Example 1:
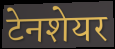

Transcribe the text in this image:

टेनशेयर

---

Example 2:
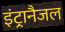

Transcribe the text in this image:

इंट्रानैजल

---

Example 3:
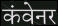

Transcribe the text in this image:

कंवेनर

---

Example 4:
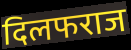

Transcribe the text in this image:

दिलफराज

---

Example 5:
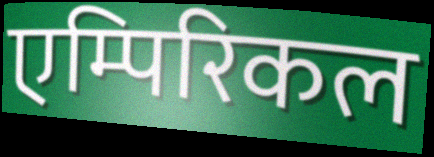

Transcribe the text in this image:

एम्पिरिकल